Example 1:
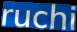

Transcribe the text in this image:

ruchi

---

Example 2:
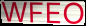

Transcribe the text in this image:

WFEO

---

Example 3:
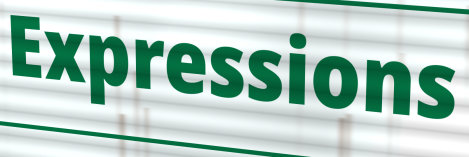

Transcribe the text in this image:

Expressions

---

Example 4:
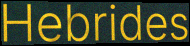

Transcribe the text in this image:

Hebrides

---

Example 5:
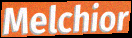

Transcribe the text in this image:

Melchior